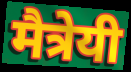
मैत्रेयी